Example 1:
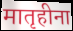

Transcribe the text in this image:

मातृहीना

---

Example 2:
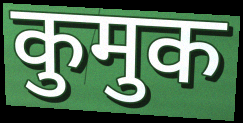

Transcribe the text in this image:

कुमुक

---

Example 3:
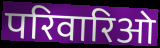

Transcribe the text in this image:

परिवारिओ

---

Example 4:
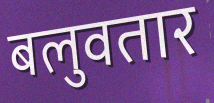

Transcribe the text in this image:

बलुवतार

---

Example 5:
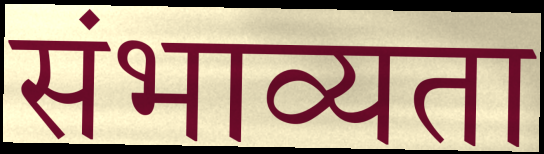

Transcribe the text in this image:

संभाव्यता